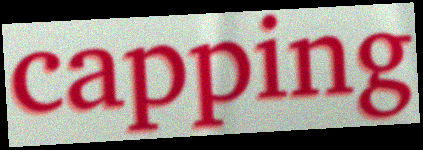
capping